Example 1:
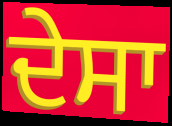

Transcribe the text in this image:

ਦੇਸਾ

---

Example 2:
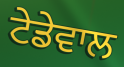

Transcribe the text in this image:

ਟੇਡੇਵਾਲ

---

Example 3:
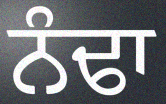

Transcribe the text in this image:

ਨੰਢਾ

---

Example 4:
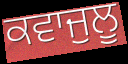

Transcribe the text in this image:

ਕਵਾਜੁਲੂ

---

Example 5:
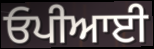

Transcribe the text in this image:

ਓਪੀਆਈ